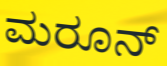
ಮರೂನ್